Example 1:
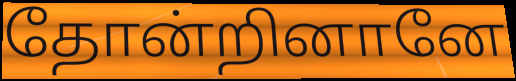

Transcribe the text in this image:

தோன்றினானே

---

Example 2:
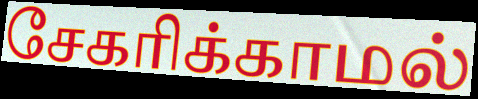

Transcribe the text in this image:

சேகரிக்காமல்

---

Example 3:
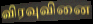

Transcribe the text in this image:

விரவுவினை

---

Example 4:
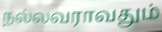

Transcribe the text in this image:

நல்லவராவதும்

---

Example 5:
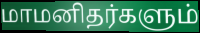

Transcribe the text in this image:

மாமனிதர்களும்